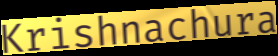
Krishnachura